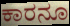
ಕಾರನೂ